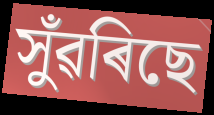
সুঁৱৰিছে